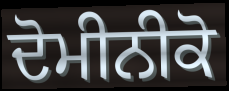
ਦੋਮੀਨੀਕੋ